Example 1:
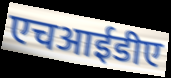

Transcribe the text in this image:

एचआईडीए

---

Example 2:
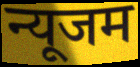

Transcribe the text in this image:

न्यूजम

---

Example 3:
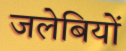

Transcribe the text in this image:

जलेबियों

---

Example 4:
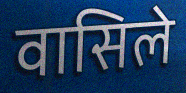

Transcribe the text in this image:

वासिले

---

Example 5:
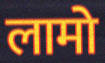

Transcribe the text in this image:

लामो